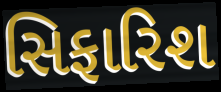
સિફારિશ